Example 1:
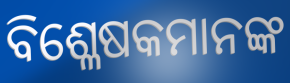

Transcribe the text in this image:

ବିଶ୍ଳେଷକମାନଙ୍କ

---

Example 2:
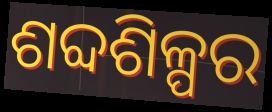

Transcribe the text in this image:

ଶବ୍ଦଶିଳ୍ପର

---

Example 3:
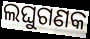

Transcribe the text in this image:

ଲଘୁଗଣକ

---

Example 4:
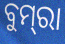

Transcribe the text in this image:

ବୁମ୍‌ରା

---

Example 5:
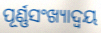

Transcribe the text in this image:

ପୂର୍ଣ୍ଣସଂଖ୍ୟାଦ୍ଵୟ